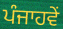
ਪੰਜਾਹਵੇਂ